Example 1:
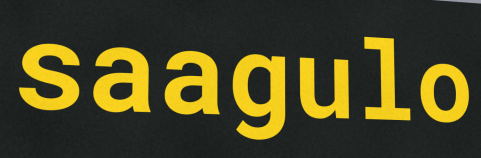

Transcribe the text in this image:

saagulo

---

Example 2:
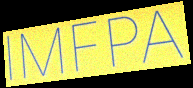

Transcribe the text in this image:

IMFPA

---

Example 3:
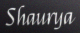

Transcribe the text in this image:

Shaurya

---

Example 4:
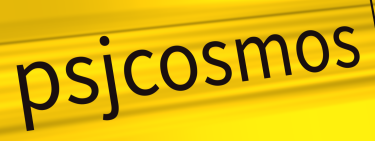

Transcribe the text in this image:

psjcosmos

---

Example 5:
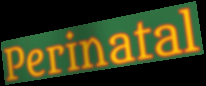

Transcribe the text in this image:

Perinatal